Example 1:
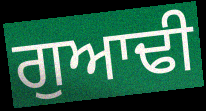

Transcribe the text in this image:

ਗੁਆਢੀ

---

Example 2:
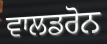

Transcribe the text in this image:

ਵਾਲਡਰੋਨ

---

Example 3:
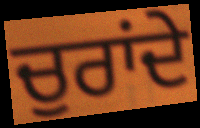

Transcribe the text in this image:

ਚੁਰਾਂਦੇ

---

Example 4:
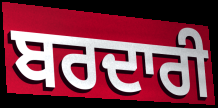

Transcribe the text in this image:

ਬਰਦਾਰੀ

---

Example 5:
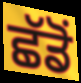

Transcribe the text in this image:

ਛੱਡੋਂ